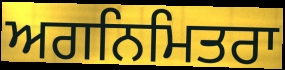
ਅਗਨਿਮਿਤਰਾ